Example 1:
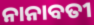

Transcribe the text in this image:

ନାନାବତୀ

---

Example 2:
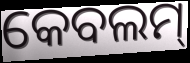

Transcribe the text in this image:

କେବଲମ୍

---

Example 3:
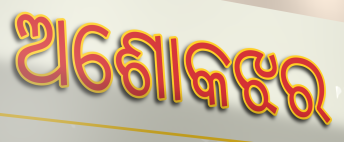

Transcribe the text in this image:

ଅଶୋକଝର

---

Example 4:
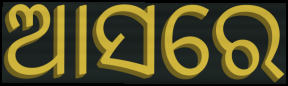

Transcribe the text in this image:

ଆସରେ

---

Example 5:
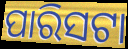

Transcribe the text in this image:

ପାରିସଟା